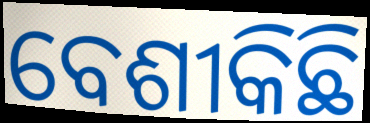
ବେଶୀକିଛି